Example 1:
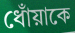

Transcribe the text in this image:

ধোঁয়াকে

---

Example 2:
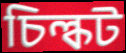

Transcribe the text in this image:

চিল্কট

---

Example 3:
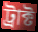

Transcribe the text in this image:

ট্রাক্ট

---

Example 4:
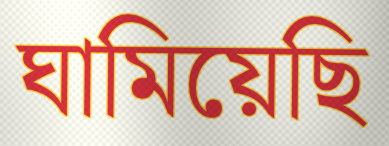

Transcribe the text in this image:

ঘামিয়েছি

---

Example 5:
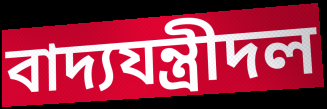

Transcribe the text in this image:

বাদ্যযন্ত্রীদল